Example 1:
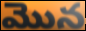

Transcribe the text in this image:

మొన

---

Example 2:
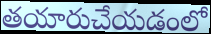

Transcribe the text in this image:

తయారుచేయడంలో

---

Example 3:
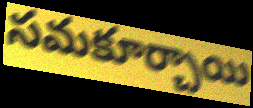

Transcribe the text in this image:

సమకూర్చాయి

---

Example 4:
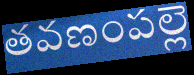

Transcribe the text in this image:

తవణంపల్లె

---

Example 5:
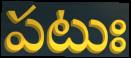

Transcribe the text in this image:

పటుః